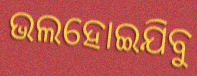
ଭଲହୋଇଯିବୁ